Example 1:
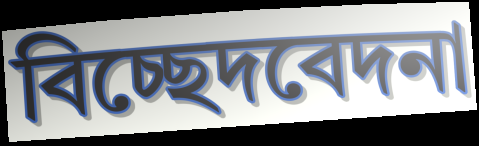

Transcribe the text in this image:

বিচ্ছেদবেদনা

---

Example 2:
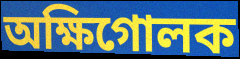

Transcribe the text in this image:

অক্ষিগোলক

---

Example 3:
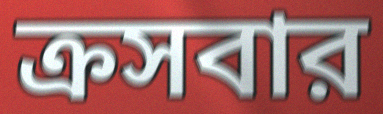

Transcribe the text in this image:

ক্রসবার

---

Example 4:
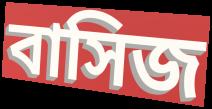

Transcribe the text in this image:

বাসিজ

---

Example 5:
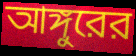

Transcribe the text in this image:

আঙ্গুরের